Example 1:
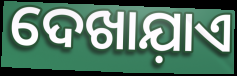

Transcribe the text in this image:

ଦେଖାଯ଼ାଏ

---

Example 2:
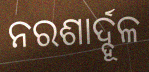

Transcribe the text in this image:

ନରଶାର୍ଦ୍ଦୂଳ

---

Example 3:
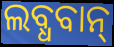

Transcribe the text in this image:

ଲବ୍ଧବାନ୍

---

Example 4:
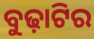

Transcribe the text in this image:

ବୁଢ଼ାଟିର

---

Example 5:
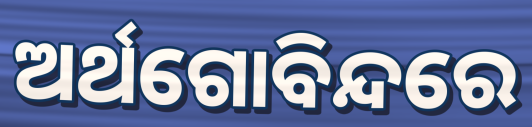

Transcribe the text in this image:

ଅର୍ଥଗୋବିନ୍ଦରେ